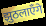
झुठलाएँगे